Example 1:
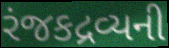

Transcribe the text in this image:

રંજકદ્રવ્યની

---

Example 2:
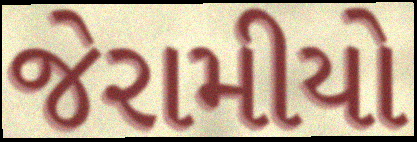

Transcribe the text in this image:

જેરામીયો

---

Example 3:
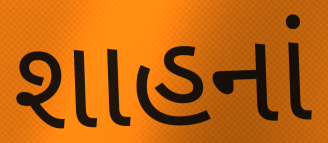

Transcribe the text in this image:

શાહનાં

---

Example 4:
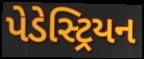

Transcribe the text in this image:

પેડેસ્ટ્રિયન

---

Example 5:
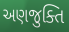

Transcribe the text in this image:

અણજુક્તિ